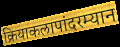
क्रियाकलापांदरम्यान